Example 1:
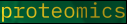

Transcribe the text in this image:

proteomics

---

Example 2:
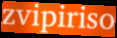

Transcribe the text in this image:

zvipiriso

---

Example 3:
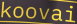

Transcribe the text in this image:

koovai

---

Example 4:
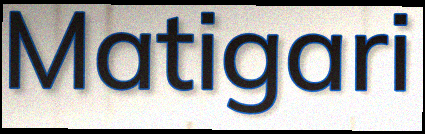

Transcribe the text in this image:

Matigari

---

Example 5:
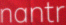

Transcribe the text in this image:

nantr